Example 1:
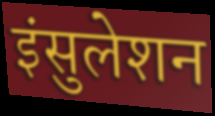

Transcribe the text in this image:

इंसुलेशन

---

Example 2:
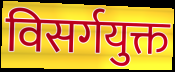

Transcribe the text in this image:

विसर्गयुक्त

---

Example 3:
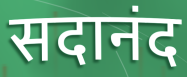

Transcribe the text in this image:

सदानंद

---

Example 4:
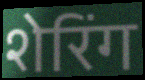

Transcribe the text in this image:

शेरिंग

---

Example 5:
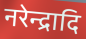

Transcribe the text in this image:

नरेन्द्रादि